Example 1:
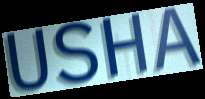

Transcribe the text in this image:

USHA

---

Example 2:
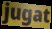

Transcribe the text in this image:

jugat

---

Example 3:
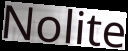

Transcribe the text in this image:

Nolite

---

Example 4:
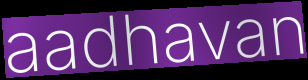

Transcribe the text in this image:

aadhavan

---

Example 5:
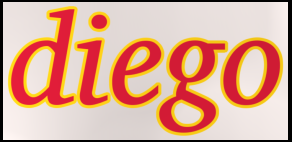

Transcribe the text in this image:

diego